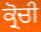
ਕ੍ਰੋਚੀ